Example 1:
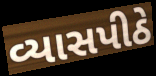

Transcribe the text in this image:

વ્યાસપીઠે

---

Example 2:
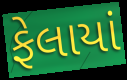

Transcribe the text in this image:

ફેલાયાં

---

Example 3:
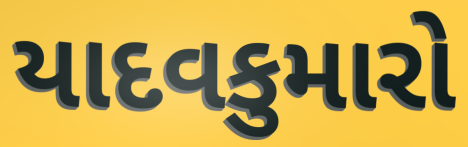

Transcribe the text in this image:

યાદવકુમારો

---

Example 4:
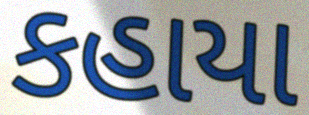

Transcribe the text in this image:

કહાયા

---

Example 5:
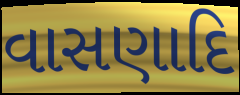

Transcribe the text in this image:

વાસણાદિ